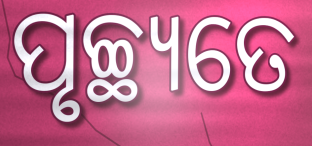
ପୃଚ୍ଛ୍ୟତେ